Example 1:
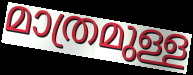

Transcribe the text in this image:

മാത്രമുള്ള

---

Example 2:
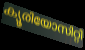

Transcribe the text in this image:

ക്യൂരിയോസിറ്റി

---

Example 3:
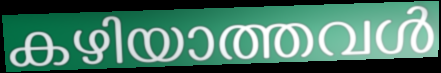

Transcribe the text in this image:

കഴിയാത്തവൾ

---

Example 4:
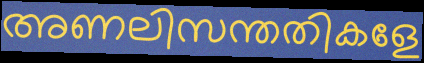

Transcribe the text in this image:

അണലിസന്തതികളേ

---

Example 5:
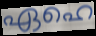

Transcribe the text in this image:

ഏഹെ